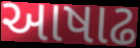
આષાઢ